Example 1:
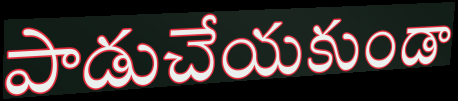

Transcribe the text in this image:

పాడుచేయకుండా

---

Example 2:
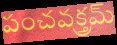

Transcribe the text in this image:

పంచవక్త్రమ్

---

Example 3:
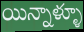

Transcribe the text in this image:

యిన్నాళ్ళూ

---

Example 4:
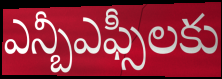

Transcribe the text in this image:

ఎన్బీఎఫ్సీలకు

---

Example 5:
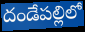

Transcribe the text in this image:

దండేపల్లిలో